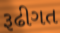
રૂઢીગત